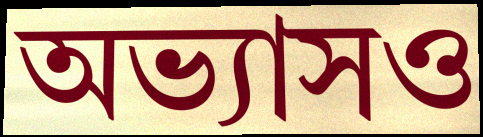
অভ্যাসও